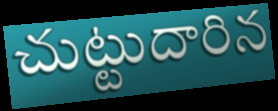
చుట్టుదారిన